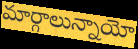
మార్గాలున్నాయో